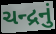
ચન્દ્રનું